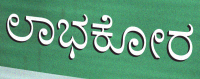
ಲಾಭಕೋರ